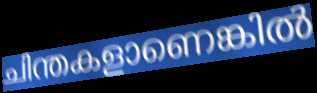
ചിന്തകളാണെങ്കിൽ